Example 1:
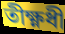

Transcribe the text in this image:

তীক্ষ্ণধী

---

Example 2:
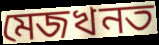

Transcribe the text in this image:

মেজখনত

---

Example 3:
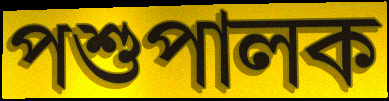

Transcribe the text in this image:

পশুপালক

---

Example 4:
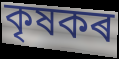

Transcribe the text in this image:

কৃষকৰ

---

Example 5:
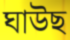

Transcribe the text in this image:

ঘাউছ